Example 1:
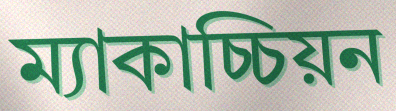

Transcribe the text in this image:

ম্যাকাচ্চিয়ন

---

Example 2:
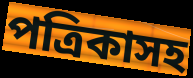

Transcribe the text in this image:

পত্রিকাসহ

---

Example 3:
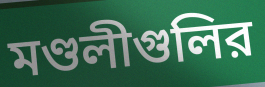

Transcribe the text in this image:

মণ্ডলীগুলির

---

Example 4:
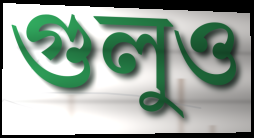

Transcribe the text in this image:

গুলুও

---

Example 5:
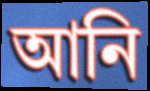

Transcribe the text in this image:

আনি